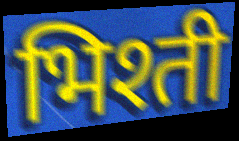
भिश्ती